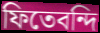
ফিতেবন্দি